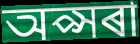
অপ্সৰা